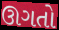
ઊગતો